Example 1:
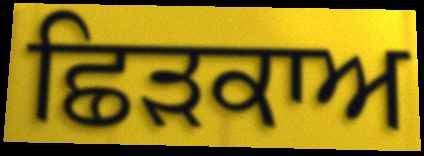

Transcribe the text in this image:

ਛਿੜਕਾਅ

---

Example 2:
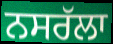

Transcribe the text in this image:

ਨਸਰੱਲਾ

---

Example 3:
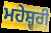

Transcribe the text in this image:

ਮਹੇਸ਼੍ਵਰੀ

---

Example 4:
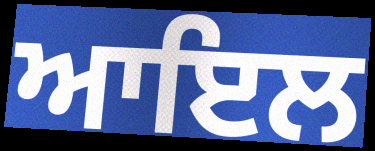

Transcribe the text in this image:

ਆਇਲ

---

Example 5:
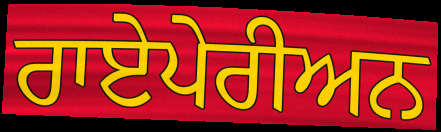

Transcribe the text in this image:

ਰਾਏਪੇਰੀਅਨ